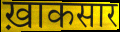
ख़ाकसार